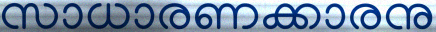
സാധാരണക്കാരനു